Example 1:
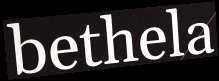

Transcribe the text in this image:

bethela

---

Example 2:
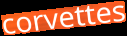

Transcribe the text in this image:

corvettes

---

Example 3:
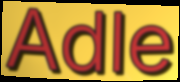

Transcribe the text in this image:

Adle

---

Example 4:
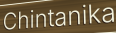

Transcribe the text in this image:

Chintanika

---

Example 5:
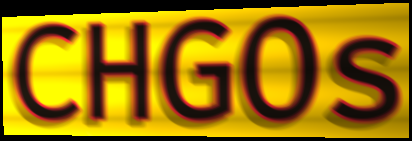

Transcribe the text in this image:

CHGOs